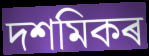
দশমিকৰ